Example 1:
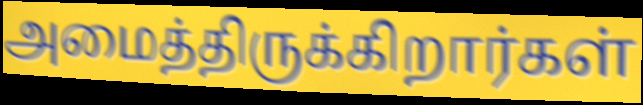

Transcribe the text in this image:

அமைத்திருக்கிறார்கள்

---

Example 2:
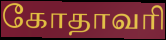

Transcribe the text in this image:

கோதாவரி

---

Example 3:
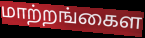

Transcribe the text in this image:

மாற்றங்கைள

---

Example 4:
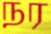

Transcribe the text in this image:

நர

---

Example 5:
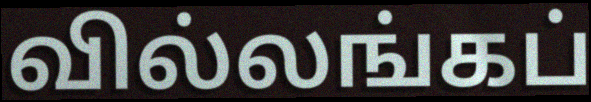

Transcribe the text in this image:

வில்லங்கப்